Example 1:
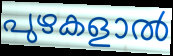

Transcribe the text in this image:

പുഴകളാൽ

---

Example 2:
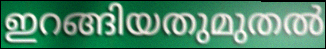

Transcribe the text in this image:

ഇറങ്ങിയതുമുതൽ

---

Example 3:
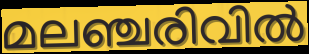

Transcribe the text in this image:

മലഞ്ചരിവിൽ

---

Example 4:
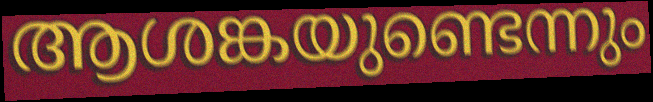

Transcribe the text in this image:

ആശങ്കയുണ്ടെന്നും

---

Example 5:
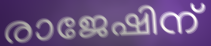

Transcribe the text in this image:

രാജേഷിന്